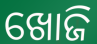
ଖୋଜି